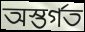
অস্তর্গত